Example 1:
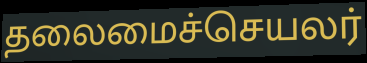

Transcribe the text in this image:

தலைமைச்செயலர்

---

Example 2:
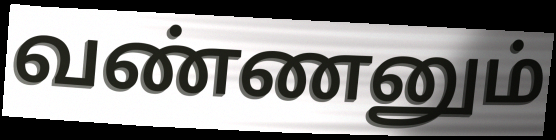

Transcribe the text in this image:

வண்ணனும்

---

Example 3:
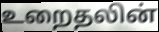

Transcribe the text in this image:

உறைதலின்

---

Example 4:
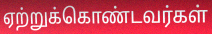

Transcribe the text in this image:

ஏற்றுக்கொண்டவர்கள்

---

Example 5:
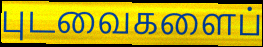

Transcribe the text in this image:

புடவைகளைப்